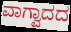
ವಾಗ್ವಾದದ